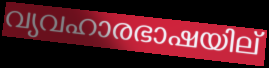
വ്യവഹാരഭാഷയില്